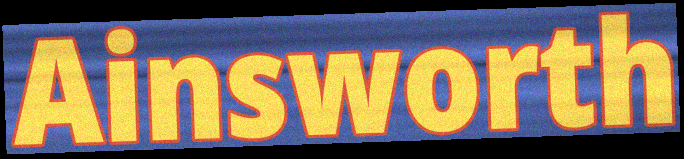
Ainsworth